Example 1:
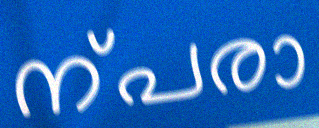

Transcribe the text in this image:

ന്പരാ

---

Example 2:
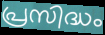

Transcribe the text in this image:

പ്രസിദ്ധം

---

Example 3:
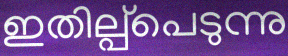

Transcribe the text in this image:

ഇതില്പ്പെടുന്നു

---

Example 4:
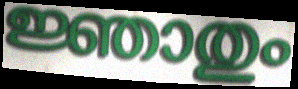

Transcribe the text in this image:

ജ്ഞാതും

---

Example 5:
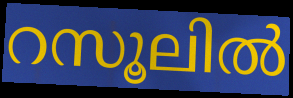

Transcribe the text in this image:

റസൂലിൽ